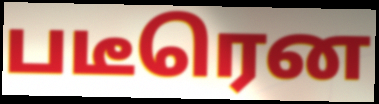
படீரென